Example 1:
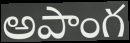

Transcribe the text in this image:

అపాంగ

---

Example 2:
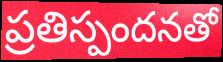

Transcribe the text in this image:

ప్రతిస్పందనతో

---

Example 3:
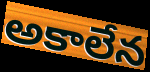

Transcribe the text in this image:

అకాలేన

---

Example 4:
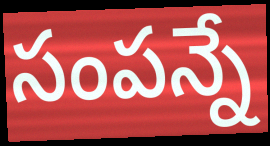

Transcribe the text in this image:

సంపన్నే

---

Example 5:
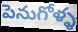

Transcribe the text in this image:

పెనుగోళ్ళ